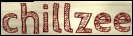
chillzee